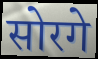
सोरगे